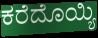
ಕರೆದೊಯ್ಯಿ